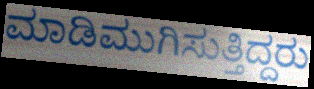
ಮಾಡಿಮುಗಿಸುತ್ತಿದ್ದರು